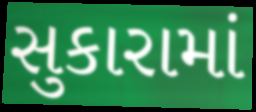
સુકારામાં